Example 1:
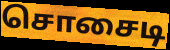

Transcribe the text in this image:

சொசைடி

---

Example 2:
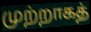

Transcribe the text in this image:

முற்றாகத்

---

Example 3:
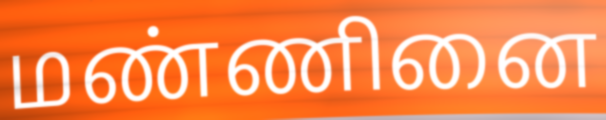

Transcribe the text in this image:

மண்ணினை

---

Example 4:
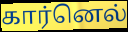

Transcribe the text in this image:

கார்னெல்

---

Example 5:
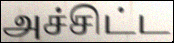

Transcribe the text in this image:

அச்சிட்ட